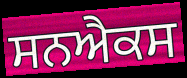
ਸਨਐਕਸ